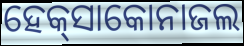
ହେକ୍‌ସାକୋନାଜଲ